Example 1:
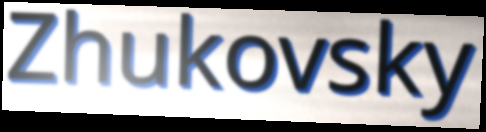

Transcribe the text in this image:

Zhukovsky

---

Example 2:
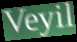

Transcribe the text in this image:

Veyil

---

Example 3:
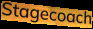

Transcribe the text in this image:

Stagecoach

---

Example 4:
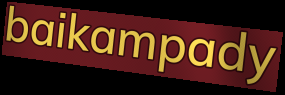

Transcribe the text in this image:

baikampady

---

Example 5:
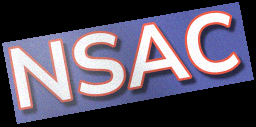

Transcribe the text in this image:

NSAC